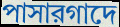
পাসারগাদে